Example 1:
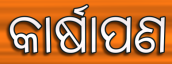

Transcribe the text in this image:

କାର୍ଷାପଣ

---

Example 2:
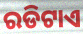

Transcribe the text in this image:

ରଡିଟାଏ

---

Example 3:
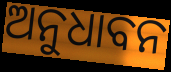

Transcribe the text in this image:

ଅନୁଧାବନ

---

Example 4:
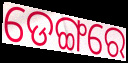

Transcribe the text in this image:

ଡେଙ୍ଗରେ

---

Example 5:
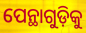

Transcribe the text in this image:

ପେନ୍ଥାଗୁଡ଼ିକୁ